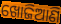
ଖୋଜିଆଣି